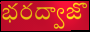
భరద్వాజొ